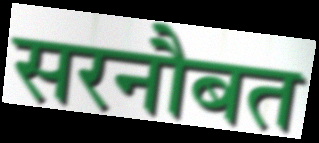
सरनौबत